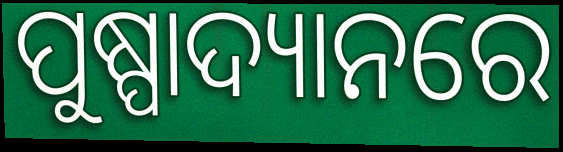
ପୁଷ୍ପାଦ୍ୟାନରେ